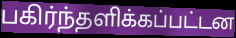
பகிர்ந்தளிக்கப்பட்டன